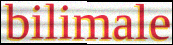
bilimale